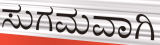
ಸುಗಮವಾಗಿ